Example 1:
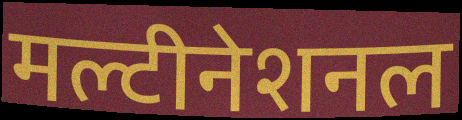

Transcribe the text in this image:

मल्टीनेशनल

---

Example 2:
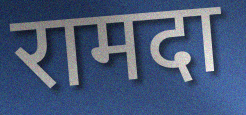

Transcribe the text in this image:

रामदा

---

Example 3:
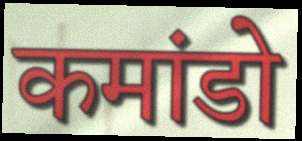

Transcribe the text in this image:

कमांडो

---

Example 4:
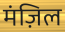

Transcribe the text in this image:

मंज़िल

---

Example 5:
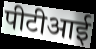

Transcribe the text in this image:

पीटीआई